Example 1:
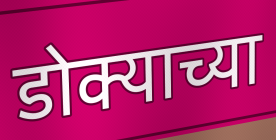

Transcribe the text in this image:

डोक्याच्या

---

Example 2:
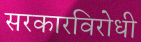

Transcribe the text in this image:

सरकारविरोधी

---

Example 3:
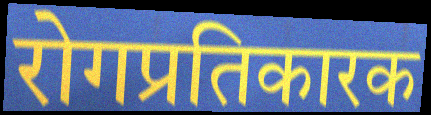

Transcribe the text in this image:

रोगप्रतिकारक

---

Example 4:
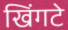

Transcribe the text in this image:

खिंगटे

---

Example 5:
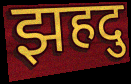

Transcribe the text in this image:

झहदु